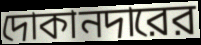
দোকানদারের